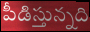
పీడిస్తున్నది